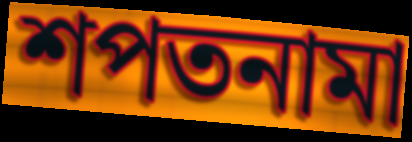
শপতনামা